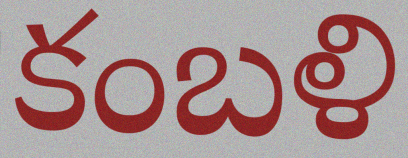
కంబళి